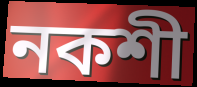
নকশী